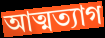
আত্মত্যাগ